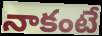
నాకంటే